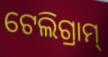
ଟେଲିଗ୍ରାମ୍